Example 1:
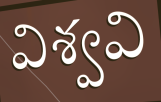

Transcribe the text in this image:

విశ్వవి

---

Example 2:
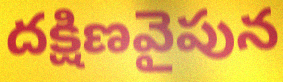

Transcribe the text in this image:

దక్షిణవైపున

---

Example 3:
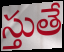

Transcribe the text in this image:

స్తుతే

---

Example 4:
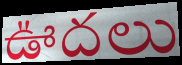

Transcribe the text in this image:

ఊదలు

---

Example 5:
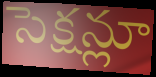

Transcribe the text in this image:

సెక్షన్లూ